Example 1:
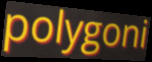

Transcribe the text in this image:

polygoni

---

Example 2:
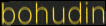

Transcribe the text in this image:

bohudin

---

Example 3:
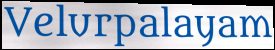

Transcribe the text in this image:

Velurpalayam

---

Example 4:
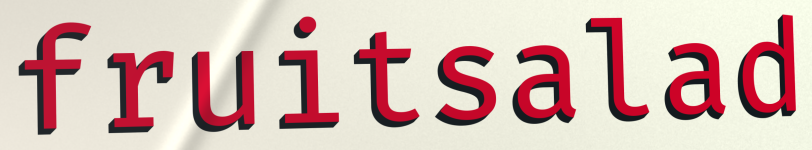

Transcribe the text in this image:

fruitsalad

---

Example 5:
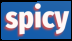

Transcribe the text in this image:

spicy